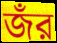
জঁর